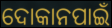
ଦୋକାନପାଇଁ